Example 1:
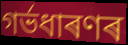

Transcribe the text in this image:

গৰ্ভধাৰণৰ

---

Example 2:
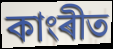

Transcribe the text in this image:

কাংৰীত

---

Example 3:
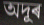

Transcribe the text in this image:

অদূৰ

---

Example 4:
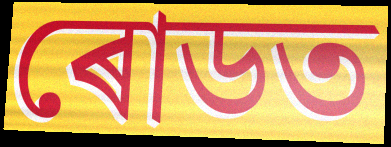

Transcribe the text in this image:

ৰোডত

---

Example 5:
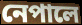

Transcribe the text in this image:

নেপালে